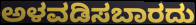
ಅಳವಡಿಸಬಾರದು